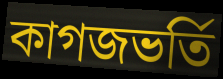
কাগজভর্তি